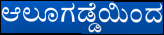
ಆಲೂಗಡ್ಡೆಯಿಂದ